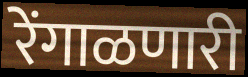
रेंगाळणारी